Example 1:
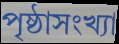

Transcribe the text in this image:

পৃষ্ঠাসংখ্যা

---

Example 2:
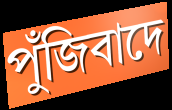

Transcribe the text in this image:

পুঁজিবাদে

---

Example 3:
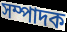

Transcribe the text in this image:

সম্পাদক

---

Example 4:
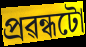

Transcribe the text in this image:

প্ৰৱন্ধটো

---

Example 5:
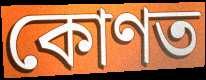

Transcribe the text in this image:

কোণত